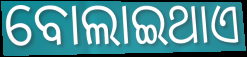
ବୋଲାଇଥାଏ